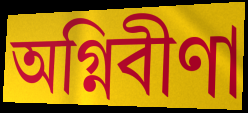
অগ্নিবীণা